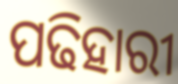
ପଢିହାରୀ